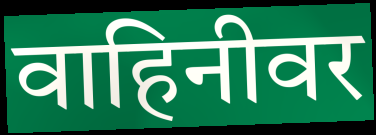
वाहिनीवर